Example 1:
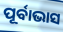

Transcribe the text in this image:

ପୂର୍ବାଭାସ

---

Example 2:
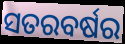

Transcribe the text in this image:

ସତରବର୍ଷର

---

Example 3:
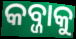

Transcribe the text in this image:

କବ୍ଜାକୁ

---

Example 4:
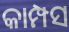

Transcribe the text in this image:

କାମ୍ପସ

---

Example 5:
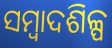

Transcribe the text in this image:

ସମ୍ୱାଦଶିଳ୍ପ